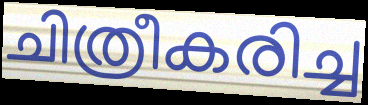
ചിത്രീകരിച്ച